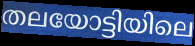
തലയോട്ടിയിലെ